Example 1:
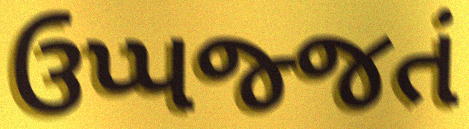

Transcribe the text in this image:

ઉપ્પજ્જતં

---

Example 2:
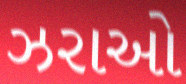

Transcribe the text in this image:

ઝરાઓ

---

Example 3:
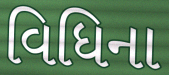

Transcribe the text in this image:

વિધિના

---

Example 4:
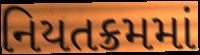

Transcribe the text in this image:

નિયતક્રમમાં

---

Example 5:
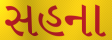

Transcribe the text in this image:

સહના